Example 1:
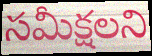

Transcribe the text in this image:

సమీక్షలని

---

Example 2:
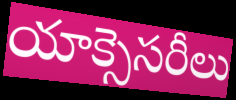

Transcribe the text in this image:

యాక్సెసరీలు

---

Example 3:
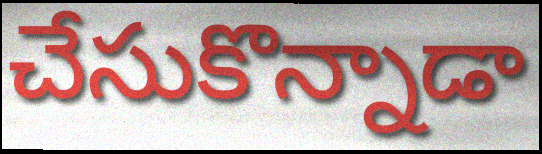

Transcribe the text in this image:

చేసుకొన్నాడా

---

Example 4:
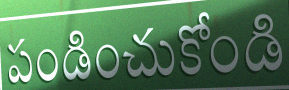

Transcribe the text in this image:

పండించుకోండి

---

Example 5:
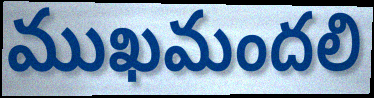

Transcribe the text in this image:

ముఖమందలి